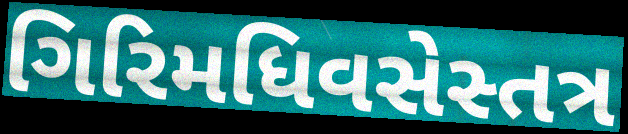
ગિરિમધિવસેસ્તત્ર